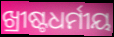
ଖ୍ରୀଷ୍ଟଧର୍ମୀୟ